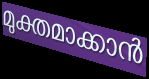
മുക്തമാക്കാൻ